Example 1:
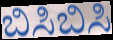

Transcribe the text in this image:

ಬಿಸಿಬಿಸಿ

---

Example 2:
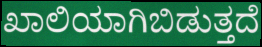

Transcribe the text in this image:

ಖಾಲಿಯಾಗಿಬಿಡುತ್ತದೆ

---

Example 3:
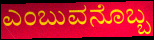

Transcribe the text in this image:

ಎಂಬುವನೊಬ್ಬ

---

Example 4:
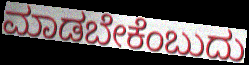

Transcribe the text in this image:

ಮಾಡಬೇಕೆಂಬುದು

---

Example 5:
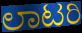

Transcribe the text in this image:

ಲಾಟರಿ